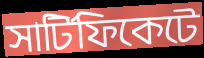
সার্টিফিকেটে